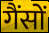
गैंसों